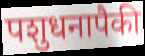
पशुधनापैकी